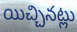
యిచ్చినట్లు